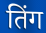
तिंग